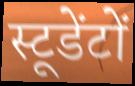
स्टूडेंटों